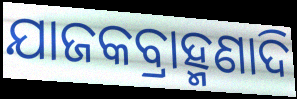
ଯାଜକବ୍ରାହ୍ମଣାଦି